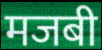
मजबी